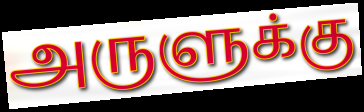
அருளுக்கு